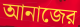
আনাজের